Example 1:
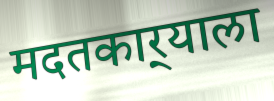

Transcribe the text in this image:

मदतकार्याला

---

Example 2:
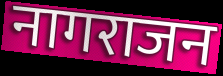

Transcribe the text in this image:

नागराजन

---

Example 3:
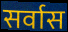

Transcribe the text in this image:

सर्वास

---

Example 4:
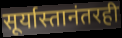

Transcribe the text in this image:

सूर्यास्तानंतरही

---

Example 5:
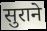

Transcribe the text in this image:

सुराने